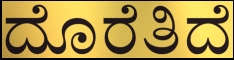
ದೊರೆತಿದೆ